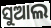
ସୁଆଲ